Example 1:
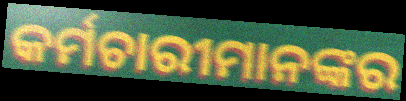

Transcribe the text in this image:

କର୍ମଚାରୀମାନଙ୍କର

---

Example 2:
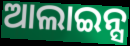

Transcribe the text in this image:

ଆଲାଇନ୍ସ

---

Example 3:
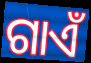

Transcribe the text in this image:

ଗାଏଁ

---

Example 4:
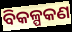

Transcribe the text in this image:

ବିକଳ୍ପକଣ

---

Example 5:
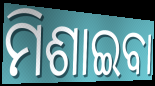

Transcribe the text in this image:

ମିଶାଇବା